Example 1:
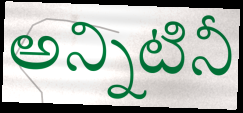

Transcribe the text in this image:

అన్నిటినీ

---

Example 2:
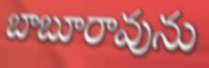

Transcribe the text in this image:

బాబూరావును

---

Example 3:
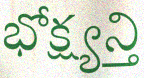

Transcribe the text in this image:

భోక్ష్యన్తి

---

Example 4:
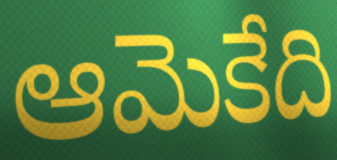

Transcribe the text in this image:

ఆమెకేది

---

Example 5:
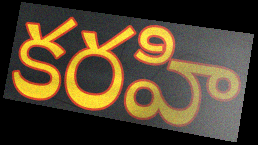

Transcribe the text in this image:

కరహి